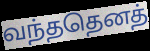
வந்ததெனத்